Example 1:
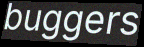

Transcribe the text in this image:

buggers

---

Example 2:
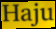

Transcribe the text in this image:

Haju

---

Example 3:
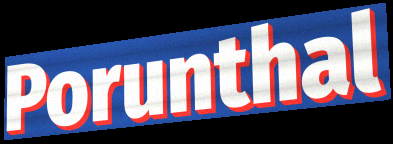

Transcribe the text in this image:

Porunthal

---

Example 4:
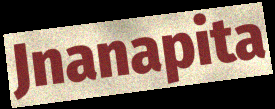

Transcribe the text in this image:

Jnanapita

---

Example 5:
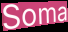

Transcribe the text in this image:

Soma